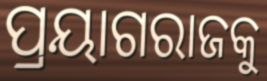
ପ୍ରୟାଗରାଜକୁ